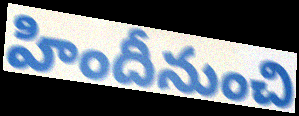
హిందీనుంచి